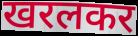
खरलकर